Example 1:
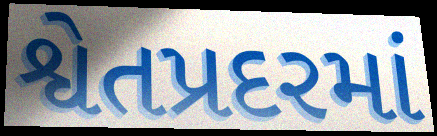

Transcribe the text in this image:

શ્વેતપ્રદરમાં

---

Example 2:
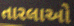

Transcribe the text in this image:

તારલાઓ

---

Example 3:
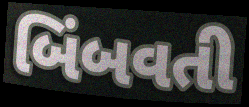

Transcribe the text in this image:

બિંબવતી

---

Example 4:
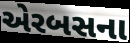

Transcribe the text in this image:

એરબસના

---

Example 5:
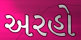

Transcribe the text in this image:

અરહો